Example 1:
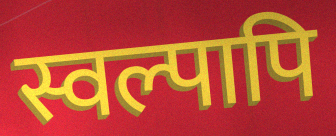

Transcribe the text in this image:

स्वल्पापि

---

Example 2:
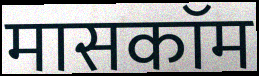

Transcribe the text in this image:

मासकॉम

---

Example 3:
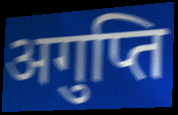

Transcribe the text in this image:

अगुप्ति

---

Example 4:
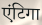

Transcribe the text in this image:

एंटिगा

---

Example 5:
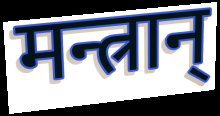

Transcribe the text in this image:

मन्त्रान्